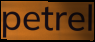
petrel